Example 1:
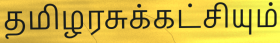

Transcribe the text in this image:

தமிழரசுக்கட்சியும்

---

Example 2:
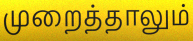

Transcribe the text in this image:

முறைத்தாலும்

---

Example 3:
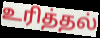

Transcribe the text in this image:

உரித்தல்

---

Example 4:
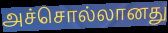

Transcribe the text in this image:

அச்சொல்லானது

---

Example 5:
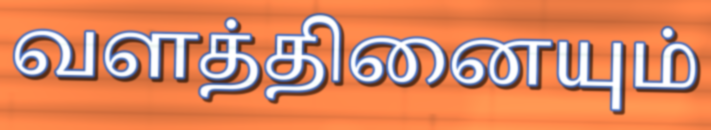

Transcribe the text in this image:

வளத்தினையும்